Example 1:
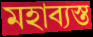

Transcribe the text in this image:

মহাব্যস্ত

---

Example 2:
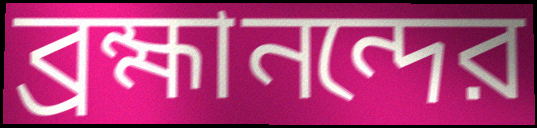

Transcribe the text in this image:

ব্রহ্মানন্দের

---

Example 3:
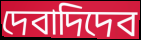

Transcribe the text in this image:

দেবাদিদেব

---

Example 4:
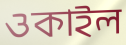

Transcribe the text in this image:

ওকাইল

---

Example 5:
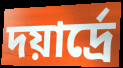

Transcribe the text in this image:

দয়ার্দ্রে